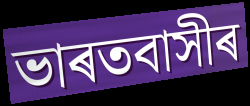
ভাৰতবাসীৰ